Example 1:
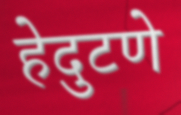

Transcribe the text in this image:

हेदुटणे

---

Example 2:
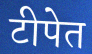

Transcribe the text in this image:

टीपेत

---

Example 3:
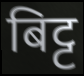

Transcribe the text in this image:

बिट्ट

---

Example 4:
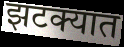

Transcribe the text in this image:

झटक्‍यात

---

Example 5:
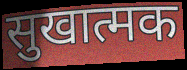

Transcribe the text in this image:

सुखात्मक